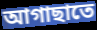
আগাছাতে